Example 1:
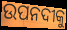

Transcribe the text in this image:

ଉପନଦୀକୁ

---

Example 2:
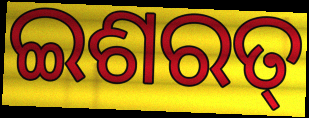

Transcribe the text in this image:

ଇଶରତ୍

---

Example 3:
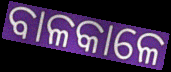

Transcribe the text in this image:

ବାଳକାଳେ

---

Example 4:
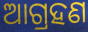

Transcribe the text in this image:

ଆଗ୍ରହଣ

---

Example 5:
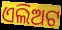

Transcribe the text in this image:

ଏଲିଅଟ